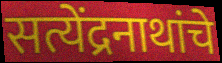
सत्येंद्रनाथांचे